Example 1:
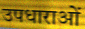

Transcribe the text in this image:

उपधाराओं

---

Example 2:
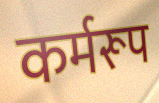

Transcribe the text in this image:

कर्मरूप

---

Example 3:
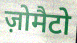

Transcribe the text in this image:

ज़ोमैटो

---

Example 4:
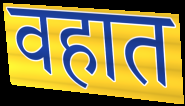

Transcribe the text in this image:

वहात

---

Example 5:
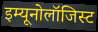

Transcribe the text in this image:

इम्यूनोलॉजिस्ट